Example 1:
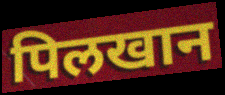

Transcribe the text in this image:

पिलखान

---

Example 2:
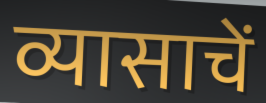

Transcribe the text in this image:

व्यासाचें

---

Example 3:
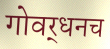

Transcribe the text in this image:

गोवर्धनच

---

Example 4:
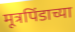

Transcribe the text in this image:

मूत्रपिंडाच्या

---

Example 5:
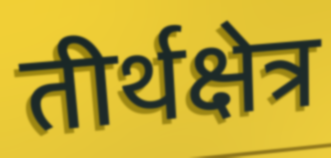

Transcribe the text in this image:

तीर्थक्षेत्र